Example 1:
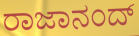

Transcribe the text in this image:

ರಾಜಾನಂದ್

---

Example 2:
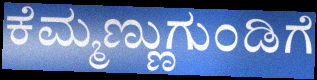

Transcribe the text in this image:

ಕೆಮ್ಮಣ್ಣುಗುಂಡಿಗೆ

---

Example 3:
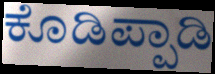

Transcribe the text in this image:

ಕೊಡಿಪ್ಪಾಡಿ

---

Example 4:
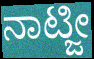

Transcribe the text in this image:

ನಾಟ್ಜೀ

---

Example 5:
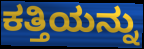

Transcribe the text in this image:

ಕತ್ತಿಯನ್ನು